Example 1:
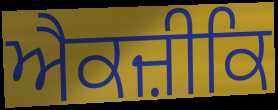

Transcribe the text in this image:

ਐਕਜ਼ੀਕਿ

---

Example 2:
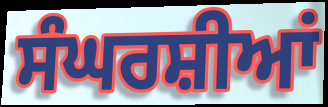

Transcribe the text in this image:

ਸੰਘਰਸ਼ੀਆਂ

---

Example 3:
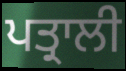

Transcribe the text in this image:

ਪਤ੍ਰਾਲੀ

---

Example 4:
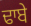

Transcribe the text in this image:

ਢਾਬੇ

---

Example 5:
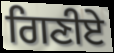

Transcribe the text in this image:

ਗਿਣੀਏ